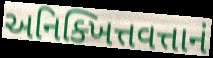
અનિક્ખિત્તવત્તાનં